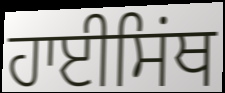
ਹਾਈਸਿਂਥ